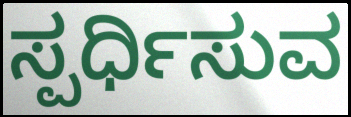
ಸ್ಪರ್ಧಿಸುವ